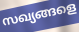
സഖ്യങ്ങളെ